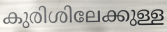
കുരിശിലേക്കുള്ള